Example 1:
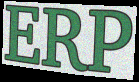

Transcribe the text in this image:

ERP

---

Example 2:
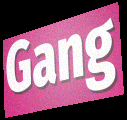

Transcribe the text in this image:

Gang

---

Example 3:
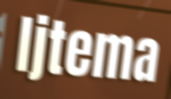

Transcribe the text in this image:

Ijtema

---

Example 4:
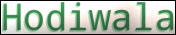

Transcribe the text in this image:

Hodiwala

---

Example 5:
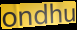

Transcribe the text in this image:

ondhu